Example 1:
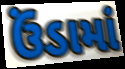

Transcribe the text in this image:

ઉંડામાં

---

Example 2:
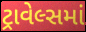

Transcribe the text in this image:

ટ્રાવેલ્સમાં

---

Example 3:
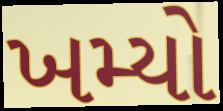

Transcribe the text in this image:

ખમ્યો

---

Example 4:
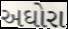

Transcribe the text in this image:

અઘોરા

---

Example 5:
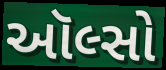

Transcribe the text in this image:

ઑલ્સો